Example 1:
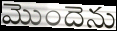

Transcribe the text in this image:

మొందెను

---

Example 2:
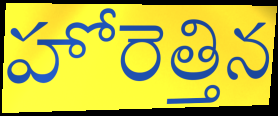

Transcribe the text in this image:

హోరెత్తిన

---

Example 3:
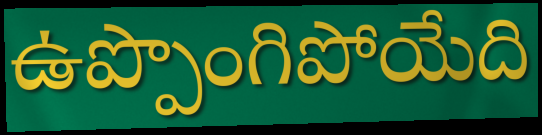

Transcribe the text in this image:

ఉప్పొంగిపోయేది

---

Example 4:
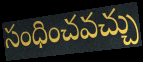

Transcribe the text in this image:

సంధించవచ్చు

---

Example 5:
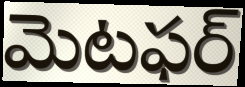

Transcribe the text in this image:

మెటఫర్